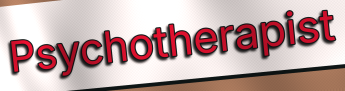
Psychotherapist